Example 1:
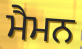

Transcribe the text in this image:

ਮੈਮਨ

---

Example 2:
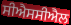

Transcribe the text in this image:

ਸੀਐਸਸੀਐਲ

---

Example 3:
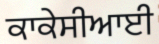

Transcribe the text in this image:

ਕਾਕੇਸੀਆਈ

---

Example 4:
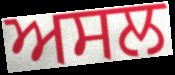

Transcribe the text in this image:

ਅਸਲ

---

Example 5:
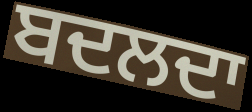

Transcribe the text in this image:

ਬਦਲਦਾ